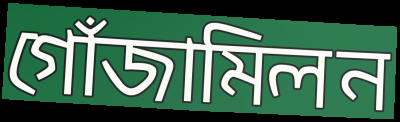
গোঁজামিলন